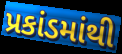
પ્રકાંડમાંથી